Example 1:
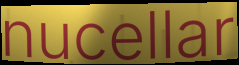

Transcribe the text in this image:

nucellar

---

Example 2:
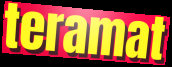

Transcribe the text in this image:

teramat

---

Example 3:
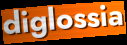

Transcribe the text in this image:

diglossia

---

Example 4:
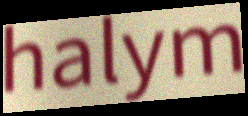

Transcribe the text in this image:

halym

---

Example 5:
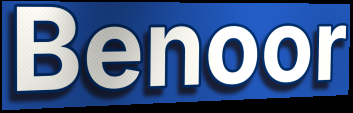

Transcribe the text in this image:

Benoor